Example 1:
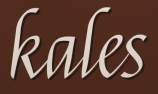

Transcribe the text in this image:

kales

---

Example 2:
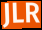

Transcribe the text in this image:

JLR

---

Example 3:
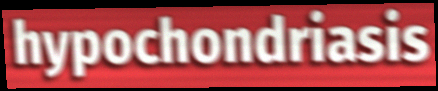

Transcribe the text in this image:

hypochondriasis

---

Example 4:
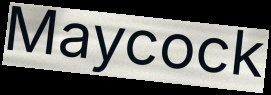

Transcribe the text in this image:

Maycock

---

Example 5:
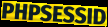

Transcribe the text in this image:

PHPSESSID